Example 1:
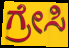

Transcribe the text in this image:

ಗ್ರೇಸಿ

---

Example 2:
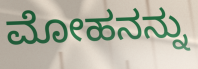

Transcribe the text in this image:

ಮೋಹನನ್ನು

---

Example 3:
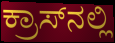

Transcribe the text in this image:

ಕ್ರಾಸ್‌ನಲ್ಲಿ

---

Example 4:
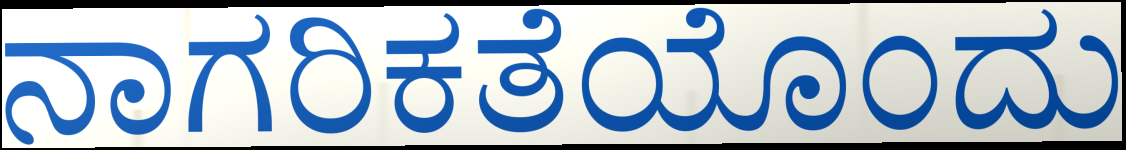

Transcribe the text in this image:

ನಾಗರಿಕತೆಯೊಂದು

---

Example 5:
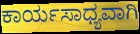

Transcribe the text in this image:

ಕಾರ್ಯಸಾಧ್ಯವಾಗಿ